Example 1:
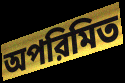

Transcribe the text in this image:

অপরিমিত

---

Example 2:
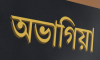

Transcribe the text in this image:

অভাগিয়া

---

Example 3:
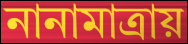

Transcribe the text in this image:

নানামাত্রায়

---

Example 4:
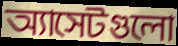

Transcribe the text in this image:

অ্যাসেটগুলো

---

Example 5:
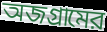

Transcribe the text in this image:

অজগ্রামের